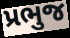
પ્રભુજ